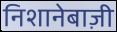
निशानेबाज़ी